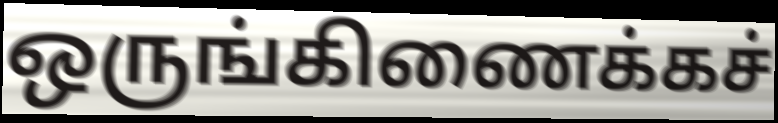
ஒருங்கிணைக்கச்